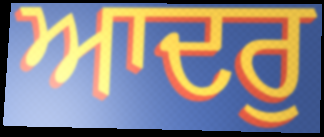
ਆਦਰੁ